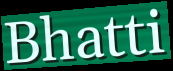
Bhatti